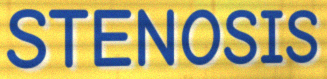
STENOSIS